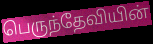
பெருந்தேவியின்